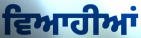
ਵਿਆਹੀਆਂ